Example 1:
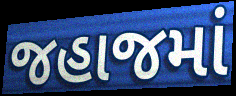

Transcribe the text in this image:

જહાજમાં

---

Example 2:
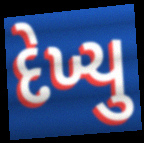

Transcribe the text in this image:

દેખ્યુ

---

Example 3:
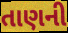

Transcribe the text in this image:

તાણની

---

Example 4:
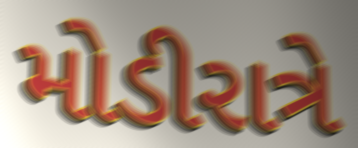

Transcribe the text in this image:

મોડીરાત્રે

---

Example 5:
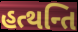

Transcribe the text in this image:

હત્થન્તિ